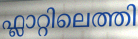
ഫ്ലാറ്റിലെത്തി